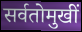
सर्वतोमुखीं